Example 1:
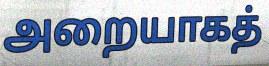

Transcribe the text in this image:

அறையாகத்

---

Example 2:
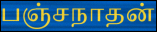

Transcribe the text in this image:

பஞ்சநாதன்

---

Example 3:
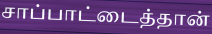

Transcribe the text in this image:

சாப்பாட்டைத்தான்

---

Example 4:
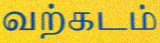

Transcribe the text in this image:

வற்கடம்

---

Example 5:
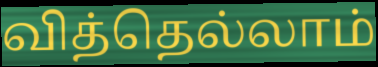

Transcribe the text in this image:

வித்தெல்லாம்